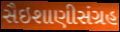
સૈઇશાણીસંગ્રહ